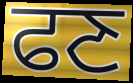
ਫਣ